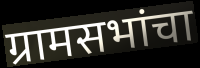
ग्रामसभांचा